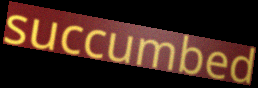
succumbed